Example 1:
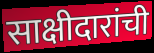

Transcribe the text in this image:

साक्षीदारांची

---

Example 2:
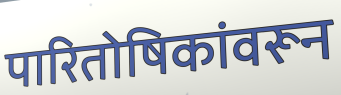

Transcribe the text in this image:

पारितोषिकांवरून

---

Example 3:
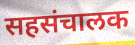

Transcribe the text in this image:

सहसंचालक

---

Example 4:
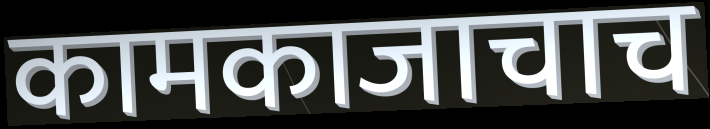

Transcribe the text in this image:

कामकाजाचाच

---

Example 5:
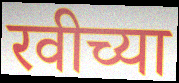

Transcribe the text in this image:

रवीच्या